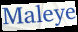
Maleye